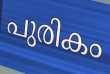
പുരികം